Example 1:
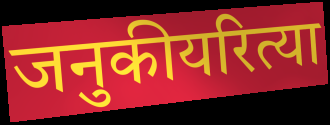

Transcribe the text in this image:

जनुकीयरित्या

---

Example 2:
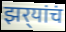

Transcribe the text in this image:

झर्‍यांचं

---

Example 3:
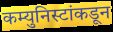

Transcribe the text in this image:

कम्युनिस्टांकडून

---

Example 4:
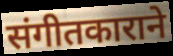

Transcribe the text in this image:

संगीतकाराने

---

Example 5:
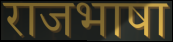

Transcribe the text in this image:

राजभाषा